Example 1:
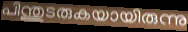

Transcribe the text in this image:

പിന്തുടരുകയായിരുന്നു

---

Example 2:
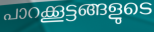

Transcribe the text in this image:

പാറക്കൂട്ടങ്ങളുടെ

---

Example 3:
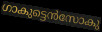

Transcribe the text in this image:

ഗാകുട്ടെൻസോകു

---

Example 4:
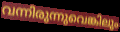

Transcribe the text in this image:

വന്നിരുന്നുവെങ്കിലും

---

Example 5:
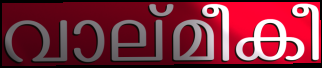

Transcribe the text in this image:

വാല്മീകീ